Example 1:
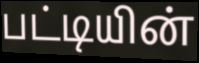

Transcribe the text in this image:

பட்டியின்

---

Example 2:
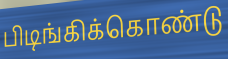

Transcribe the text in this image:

பிடிங்கிக்கொண்டு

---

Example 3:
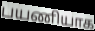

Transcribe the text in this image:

பயணியாக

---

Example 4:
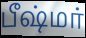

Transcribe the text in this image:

பீஷ்மர்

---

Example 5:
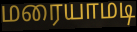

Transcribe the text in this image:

மரையாமடி